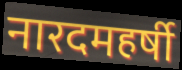
नारदमहर्षी